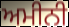
ਅਮੀਨੀ